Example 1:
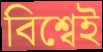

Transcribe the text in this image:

বিশ্বেই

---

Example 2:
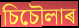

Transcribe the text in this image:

চিচৌলাৰ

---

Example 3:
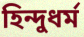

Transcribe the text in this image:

হিন্দুধৰ্ম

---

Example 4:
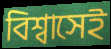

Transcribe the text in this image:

বিশ্বাসেই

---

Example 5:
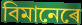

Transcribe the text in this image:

বিমানেৰে